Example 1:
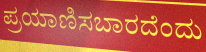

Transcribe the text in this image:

ಪ್ರಯಾಣಿಸಬಾರದೆಂದು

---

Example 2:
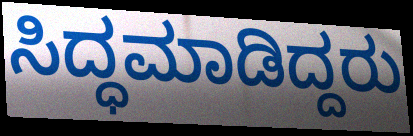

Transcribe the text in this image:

ಸಿದ್ಧಮಾಡಿದ್ದರು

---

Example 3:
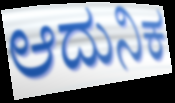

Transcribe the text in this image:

ಆದುನಿಕ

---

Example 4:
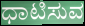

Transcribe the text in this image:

ಧಾಟಿಸುವ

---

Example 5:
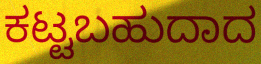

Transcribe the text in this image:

ಕಟ್ಟಬಹುದಾದ